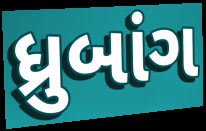
ધ્રુબાંગ